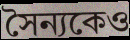
সৈন্যকেও